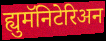
ह्युमॅनिटेरिअन